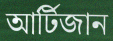
আর্টিজান